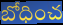
బోధించ